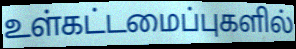
உள்கட்டமைப்புகளில்